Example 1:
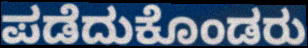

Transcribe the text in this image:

ಪಡೆದುಕೊಂಡರು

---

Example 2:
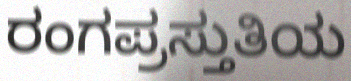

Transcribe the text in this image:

ರಂಗಪ್ರಸ್ತುತಿಯ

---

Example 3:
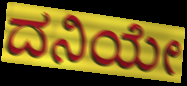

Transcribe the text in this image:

ದನಿಯೇ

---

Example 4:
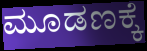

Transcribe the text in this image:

ಮೂಡಣಕ್ಕೆ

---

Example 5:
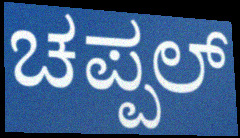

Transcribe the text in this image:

ಚಪ್ಪಲ್